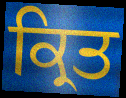
ਕ੍ਰਿਤ